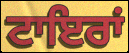
ਟਾਇਰਾਂ